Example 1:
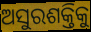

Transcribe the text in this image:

ଅସୁରଶକ୍ତିକୁ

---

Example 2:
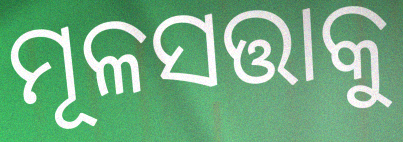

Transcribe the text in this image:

ମୂଳସତ୍ତାକୁ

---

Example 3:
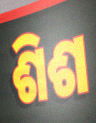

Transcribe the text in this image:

ଶିଶ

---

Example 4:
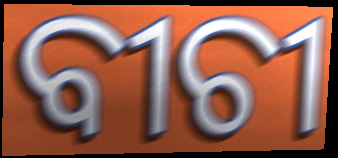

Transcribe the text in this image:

ବୀଚୀ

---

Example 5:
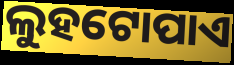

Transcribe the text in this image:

ଲୁହଟୋପାଏ